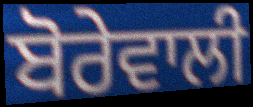
ਬੋਰੇਵਾਲੀ